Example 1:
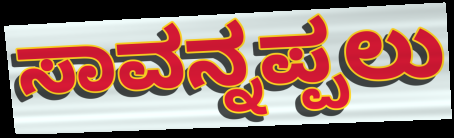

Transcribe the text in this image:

ಸಾವನ್ನಪ್ಪಲು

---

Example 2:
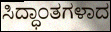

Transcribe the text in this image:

ಸಿದ್ಧಾಂತಗಳಾದ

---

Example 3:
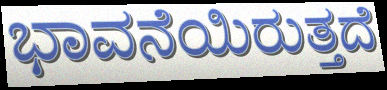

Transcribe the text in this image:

ಭಾವನೆಯಿರುತ್ತದೆ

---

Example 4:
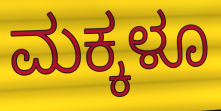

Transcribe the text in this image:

ಮಕ್ಕಳೂ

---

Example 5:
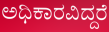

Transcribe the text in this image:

ಅಧಿಕಾರವಿದ್ದರೆ